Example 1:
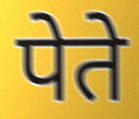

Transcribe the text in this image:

पेते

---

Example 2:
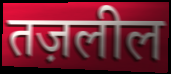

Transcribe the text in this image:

तज़लील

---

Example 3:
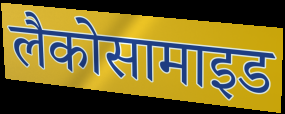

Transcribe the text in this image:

लैकोसामाइड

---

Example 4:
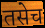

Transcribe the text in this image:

तसेच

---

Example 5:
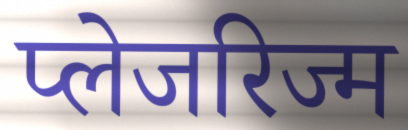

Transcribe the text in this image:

प्लेजरिज्म